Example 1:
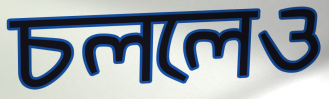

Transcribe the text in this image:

চললেও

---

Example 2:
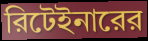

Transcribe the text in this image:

রিটেইনারের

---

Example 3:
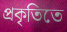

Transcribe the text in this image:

প্রকৃতিতে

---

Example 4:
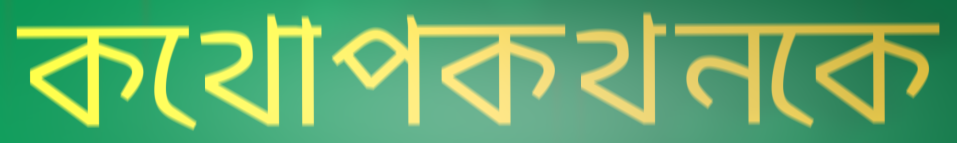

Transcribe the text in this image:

কথোপকথনকে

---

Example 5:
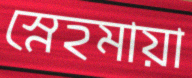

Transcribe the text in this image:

স্নেহমায়া